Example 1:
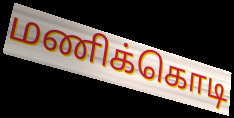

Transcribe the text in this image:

மணிக்கொடி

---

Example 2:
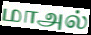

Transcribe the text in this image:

மாஅல்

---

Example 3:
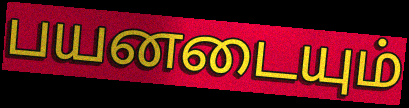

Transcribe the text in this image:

பயனடையும்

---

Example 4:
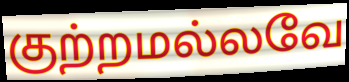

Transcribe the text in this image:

குற்றமல்லவே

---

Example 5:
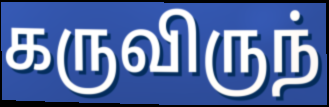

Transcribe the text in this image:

கருவிருந்